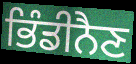
ਭਿੰਡੀਨੈਣ